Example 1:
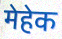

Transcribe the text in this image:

मेहेक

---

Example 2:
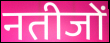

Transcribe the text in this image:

नतीजों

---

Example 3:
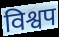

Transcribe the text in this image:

विश्वप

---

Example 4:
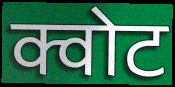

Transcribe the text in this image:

क्वोट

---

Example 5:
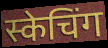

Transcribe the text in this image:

स्केचिंग